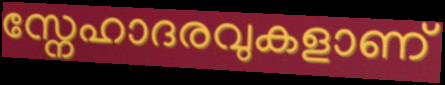
സ്നേഹാദരവുകളാണ്